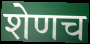
शेणच